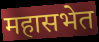
महासभेत